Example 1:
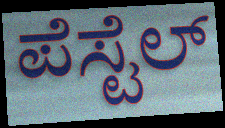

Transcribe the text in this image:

ಪೆಸ್ಟೆಲ್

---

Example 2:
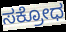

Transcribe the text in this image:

ಸಕ್ರೋಧ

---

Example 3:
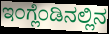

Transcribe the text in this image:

ಇಂಗ್ಲೆಂಡಿನಲ್ಲಿನ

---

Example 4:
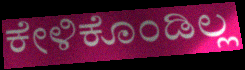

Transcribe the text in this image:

ಕೇಳಿಕೊಂಡಿಲ್ಲ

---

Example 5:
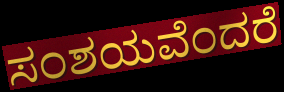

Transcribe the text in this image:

ಸಂಶಯವೆಂದರೆ